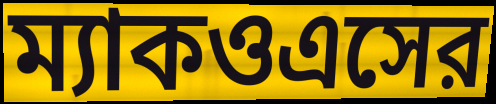
ম্যাকওএসের